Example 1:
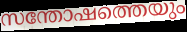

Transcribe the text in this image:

സന്തോഷത്തെയും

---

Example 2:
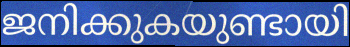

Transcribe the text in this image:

ജനിക്കുകയുണ്ടായി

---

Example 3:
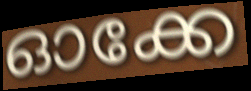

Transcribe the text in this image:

ഓക്കേ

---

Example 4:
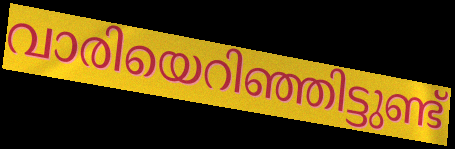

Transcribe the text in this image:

വാരിയെറിഞ്ഞിട്ടുണ്ട്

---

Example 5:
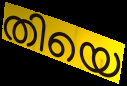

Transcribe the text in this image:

തിയെ